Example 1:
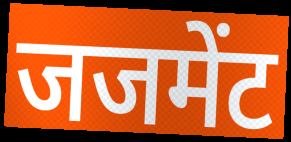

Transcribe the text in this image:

जजमेंट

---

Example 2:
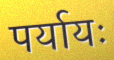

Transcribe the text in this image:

पर्यायः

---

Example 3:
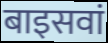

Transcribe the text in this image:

बाइसवां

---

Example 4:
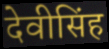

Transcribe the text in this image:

देवीसिंह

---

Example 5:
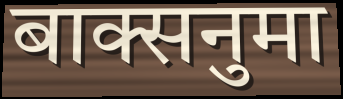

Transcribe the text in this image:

बाक्सनुमा